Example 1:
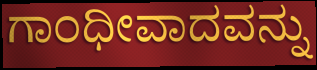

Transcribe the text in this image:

ಗಾಂಧೀವಾದವನ್ನು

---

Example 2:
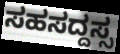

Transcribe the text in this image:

ಸಹಸದ್ದಸ್ಸ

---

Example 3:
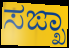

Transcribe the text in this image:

ಸಙ್ಖಾ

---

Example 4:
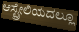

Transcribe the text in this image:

ಆಸ್ಟ್ರೇಲಿಯದಲ್ಲೂ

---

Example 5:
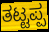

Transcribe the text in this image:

ತಟ್ಟಪ್ಪ